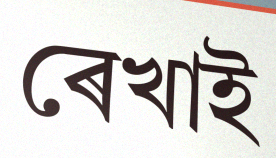
ৰেখাই